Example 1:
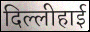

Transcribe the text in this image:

दिल्लीहाई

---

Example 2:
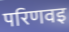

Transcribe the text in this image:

परिणवइ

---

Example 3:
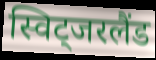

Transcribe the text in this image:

स्विट्जरलैंड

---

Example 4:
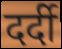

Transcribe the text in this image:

दर्दी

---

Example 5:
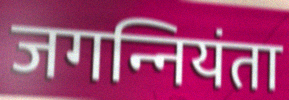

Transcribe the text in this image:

जगन्नियंता